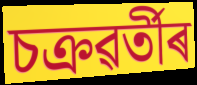
চক্ৰৱৰ্তীৰ